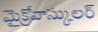
మైక్రోవాస్కులర్